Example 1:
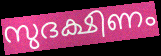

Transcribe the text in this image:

സുദക്ഷിണം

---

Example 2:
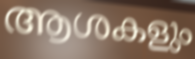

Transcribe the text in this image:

ആശകളും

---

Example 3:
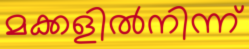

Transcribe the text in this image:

മക്കളിൽനിന്ന്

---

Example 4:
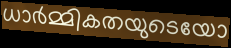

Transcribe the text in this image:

ധാർമ്മികതയുടെയോ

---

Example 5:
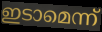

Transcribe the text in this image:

ഇടാമെന്ന്